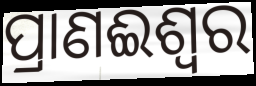
ପ୍ରାଣଈଶ୍ୱର